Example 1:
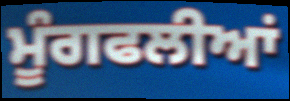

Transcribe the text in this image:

ਮੂੰਗਫਲੀਆਂ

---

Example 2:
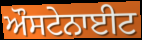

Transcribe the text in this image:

ਔਸਟੇਨਾਈਟ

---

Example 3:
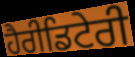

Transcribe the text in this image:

ਹੈਰੀਡਿਟੇਰੀ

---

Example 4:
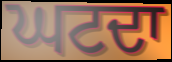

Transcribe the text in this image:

ਘਟਦਾ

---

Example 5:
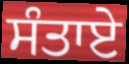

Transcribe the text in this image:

ਸੰਤਾਏ